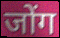
जोंग